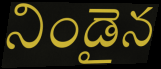
నిండైన